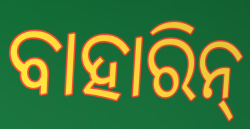
ବାହାରିନ୍